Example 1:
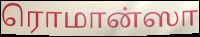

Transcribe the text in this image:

ரொமான்ஸா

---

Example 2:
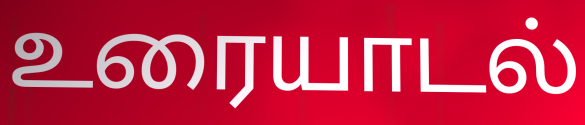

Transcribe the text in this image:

உரையாடல்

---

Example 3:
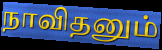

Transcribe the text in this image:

நாவிதனும்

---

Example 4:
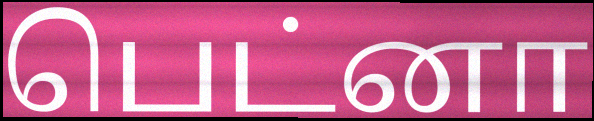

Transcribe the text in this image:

பெட்னா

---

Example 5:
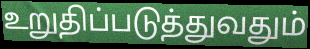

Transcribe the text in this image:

உறுதிப்படுத்துவதும்